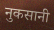
नुकसानी